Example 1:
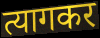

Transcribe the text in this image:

त्यागकर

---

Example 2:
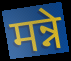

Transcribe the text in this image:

मन्ने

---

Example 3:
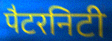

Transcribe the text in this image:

पैटरनिटी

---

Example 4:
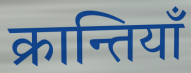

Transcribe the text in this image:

क्रान्तियाँ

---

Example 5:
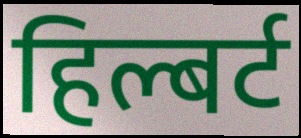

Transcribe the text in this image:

हिल्बर्ट